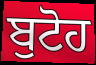
ਬੁਟੋਹ